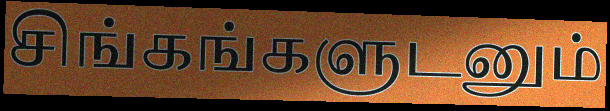
சிங்கங்களுடனும்